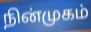
நின்முகம்